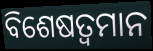
ବିଶେଷତ୍ଵମାନ